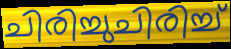
ചിരിച്ചുചിരിച്ച്